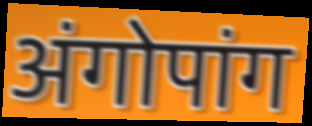
अंगोपांग